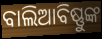
ବାଲିଆବିଷ୍ଣୁଙ୍କ